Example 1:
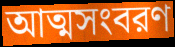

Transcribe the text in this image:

আত্মসংবরণ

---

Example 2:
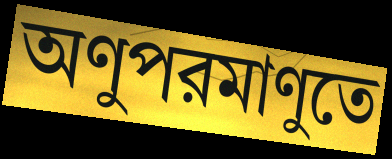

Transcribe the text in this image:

অণুপরমাণুতে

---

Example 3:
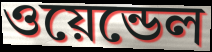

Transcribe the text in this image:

ওয়েন্ডেল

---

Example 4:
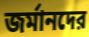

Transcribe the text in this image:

জর্মানদের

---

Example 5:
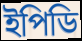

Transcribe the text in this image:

ইপিডি